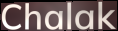
Chalak